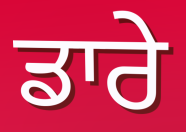
ਡਾਰੇ